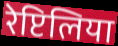
रेप्टिलिया